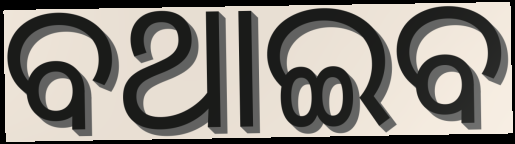
ବଥାଇବ